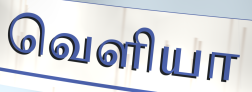
வெளியா